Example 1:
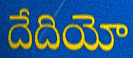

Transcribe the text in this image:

దేదియో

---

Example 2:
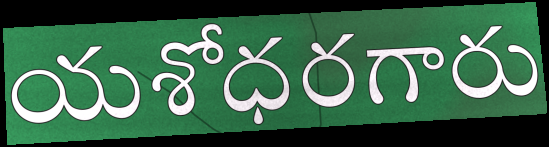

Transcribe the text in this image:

యశోధరగారు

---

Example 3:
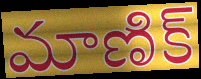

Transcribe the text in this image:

మాణిక్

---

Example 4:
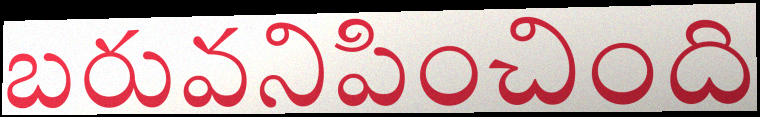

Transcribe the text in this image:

బరువనిపించింది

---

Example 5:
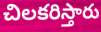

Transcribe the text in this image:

చిలకరిస్తారు